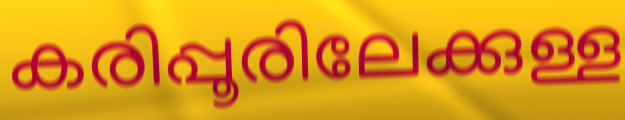
കരിപ്പൂരിലേക്കുള്ള